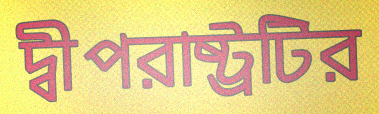
দ্বীপরাষ্ট্রটির